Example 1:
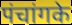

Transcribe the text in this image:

पंचांगके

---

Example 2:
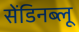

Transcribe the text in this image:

सेंडिनब्लू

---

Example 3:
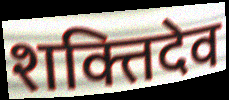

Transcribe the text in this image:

शक्तिदेव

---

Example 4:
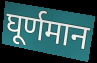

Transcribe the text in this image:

घूर्णमान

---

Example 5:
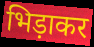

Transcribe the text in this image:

भिड़ाकर